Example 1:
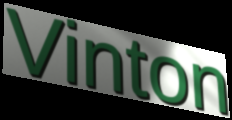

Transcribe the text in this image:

Vinton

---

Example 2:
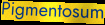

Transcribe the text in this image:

Pigmentosum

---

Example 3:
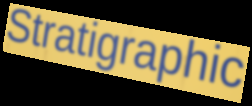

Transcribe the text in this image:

Stratigraphic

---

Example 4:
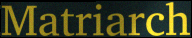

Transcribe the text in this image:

Matriarch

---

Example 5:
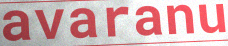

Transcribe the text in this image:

avaranu